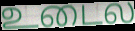
உடைல